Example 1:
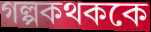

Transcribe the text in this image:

গল্পকথককে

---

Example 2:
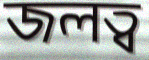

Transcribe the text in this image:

জলত্ব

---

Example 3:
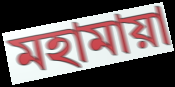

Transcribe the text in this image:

মহামায়া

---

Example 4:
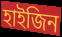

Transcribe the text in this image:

হাইজিন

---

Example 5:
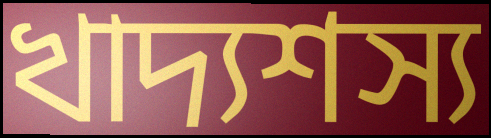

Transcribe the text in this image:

খাদ্যশস্য